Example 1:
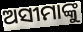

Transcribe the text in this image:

ଅସୀମାଙ୍କୁ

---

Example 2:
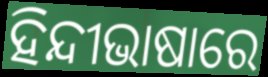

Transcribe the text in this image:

ହିନ୍ଦୀଭାଷାରେ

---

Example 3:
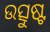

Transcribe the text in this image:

ଉତ୍ସୁଷ୍ଟ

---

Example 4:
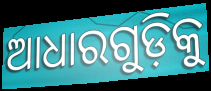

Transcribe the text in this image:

ଆଧାରଗୁଡ଼ିକୁ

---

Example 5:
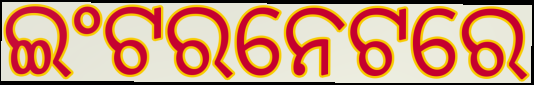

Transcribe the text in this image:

ଇଂଟରନେଟରେ